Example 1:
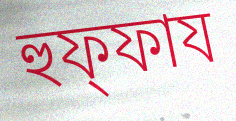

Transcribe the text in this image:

হুফ্ফায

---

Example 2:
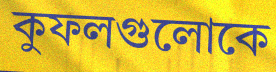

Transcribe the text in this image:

কুফলগুলোকে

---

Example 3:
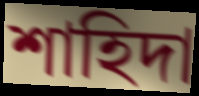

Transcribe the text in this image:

শাহিদা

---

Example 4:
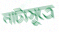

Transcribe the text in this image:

নাট্যসূত্রে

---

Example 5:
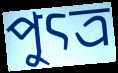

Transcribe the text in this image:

পুৎত্র